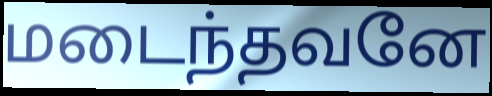
மடைந்தவனே